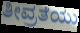
ತೀವ್ರತೆಯು